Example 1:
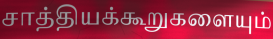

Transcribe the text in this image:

சாத்தியக்கூறுகளையும்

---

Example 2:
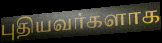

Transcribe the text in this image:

புதியவர்களாக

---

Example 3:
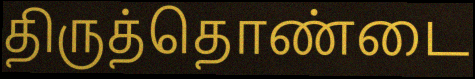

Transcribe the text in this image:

திருத்தொண்டை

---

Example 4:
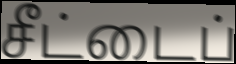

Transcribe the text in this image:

சீட்டைப்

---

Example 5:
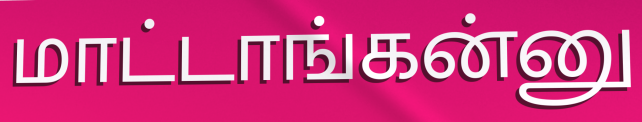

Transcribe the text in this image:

மாட்டாங்கன்னு